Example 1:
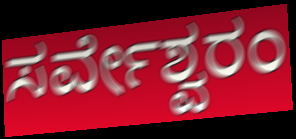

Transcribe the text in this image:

ಸರ್ವೇಶ್ವರಂ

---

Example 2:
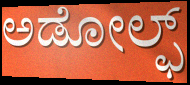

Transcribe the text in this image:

ಅಡೋಲ್ಫ್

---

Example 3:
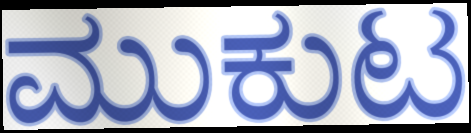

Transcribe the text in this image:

ಮುಕುಟ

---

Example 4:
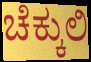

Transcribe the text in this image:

ಚೆಕ್ಕುಲಿ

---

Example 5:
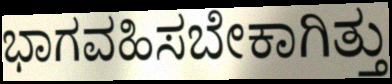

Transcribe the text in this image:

ಭಾಗವಹಿಸಬೇಕಾಗಿತ್ತು